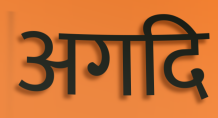
अगदि